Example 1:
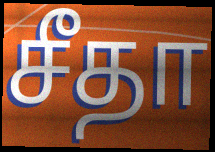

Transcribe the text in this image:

சீதா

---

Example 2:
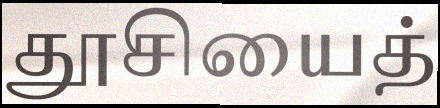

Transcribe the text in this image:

தூசியைத்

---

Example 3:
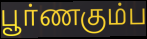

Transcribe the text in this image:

பூர்ணகும்ப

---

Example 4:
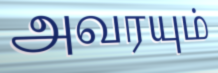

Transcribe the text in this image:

அவரயும்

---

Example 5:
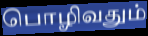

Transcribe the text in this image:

பொழிவதும்